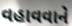
વહાવવાને